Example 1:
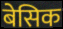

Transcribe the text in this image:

बेसिक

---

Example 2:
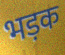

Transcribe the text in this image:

भड़क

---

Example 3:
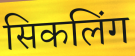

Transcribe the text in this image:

सिकलिंग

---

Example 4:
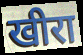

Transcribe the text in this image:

खीरा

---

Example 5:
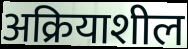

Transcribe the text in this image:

अक्रियाशील